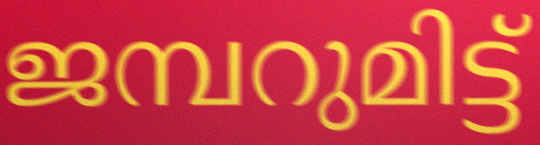
ജമ്പറുമിട്ട്